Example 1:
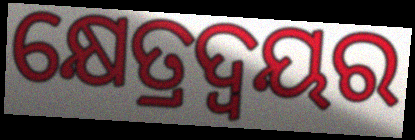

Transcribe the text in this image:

କ୍ଷେତ୍ରଦ୍ୱୟର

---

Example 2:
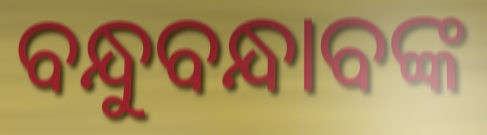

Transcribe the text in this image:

ବନ୍ଧୁବନ୍ଧାବଙ୍କ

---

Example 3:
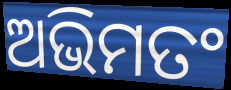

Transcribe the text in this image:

ଅଭିମତଂ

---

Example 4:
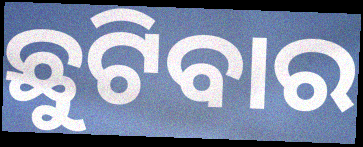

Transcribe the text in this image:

ଛୁଟିବାର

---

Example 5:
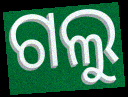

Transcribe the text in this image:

ଗଲୁ